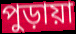
পুড়ায়া